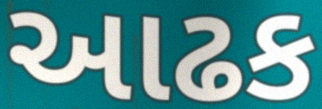
આઢક